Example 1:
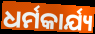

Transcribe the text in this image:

ଧର୍ମକାର୍ଯ୍ୟ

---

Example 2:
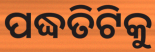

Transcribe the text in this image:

ପଦ୍ଧତିଟିକୁ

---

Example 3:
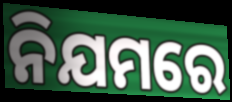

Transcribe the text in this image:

ନିଯମରେ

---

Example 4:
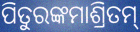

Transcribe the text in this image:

ପିତୁରଙ୍କମାଶ୍ରିତମ୍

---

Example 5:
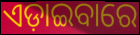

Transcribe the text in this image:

ଏଡ଼ାଇବାରେ